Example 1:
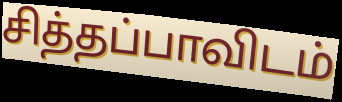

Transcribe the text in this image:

சித்தப்பாவிடம்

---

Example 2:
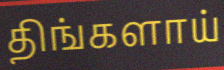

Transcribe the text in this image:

திங்களாய்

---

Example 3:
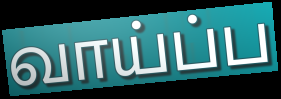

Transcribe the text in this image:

வாய்ப்ப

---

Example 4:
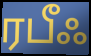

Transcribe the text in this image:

ரபீஃ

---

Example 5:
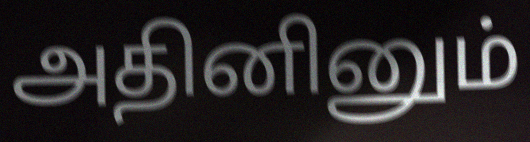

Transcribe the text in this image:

அதினினும்